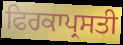
ਫਿਰਕਾਪ੍ਰਸਤੀ